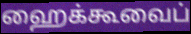
ஹைக்கூவைப்